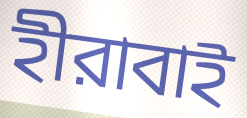
হীরাবাই